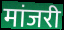
मांजरी